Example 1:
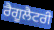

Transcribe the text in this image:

ਰੈਗੂਲੈਟਰੀ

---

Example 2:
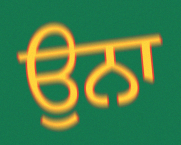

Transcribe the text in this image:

ਉਨਾ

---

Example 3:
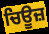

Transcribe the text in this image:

ਚਿਊਜ਼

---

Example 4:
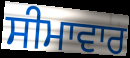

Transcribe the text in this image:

ਸੀਮਾਵਾਰ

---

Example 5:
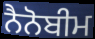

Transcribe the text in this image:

ਨੈਨੋਬੀਮ